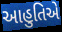
આહુતિએ